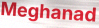
Meghanad